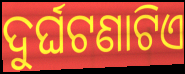
ଦୁର୍ଘଟଣାଟିଏ